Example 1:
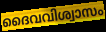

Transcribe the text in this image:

ദൈവവിശ്വാസം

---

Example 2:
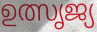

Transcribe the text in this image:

ഉത്സൃജ്യ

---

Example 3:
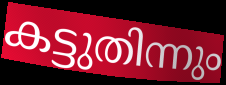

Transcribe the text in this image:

കട്ടുതിന്നും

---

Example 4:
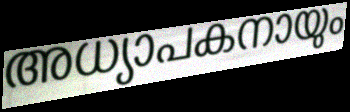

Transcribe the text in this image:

അധ്യാപകനായും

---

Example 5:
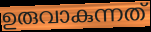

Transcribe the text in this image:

ഉരുവാകുന്നത്